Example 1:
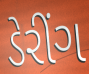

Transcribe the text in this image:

ડેરીંગ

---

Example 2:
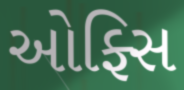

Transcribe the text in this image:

ઓફ્સિ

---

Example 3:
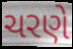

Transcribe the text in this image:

ચરણે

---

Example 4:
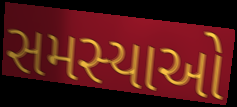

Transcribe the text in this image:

સમસ્યાઓ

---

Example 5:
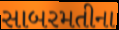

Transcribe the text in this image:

સાબરમતીના